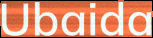
Ubaida